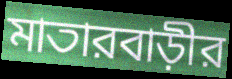
মাতারবাড়ীর